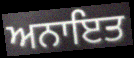
ਅਨਾਇਤ